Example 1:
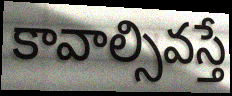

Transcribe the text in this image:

కావాల్సివస్తే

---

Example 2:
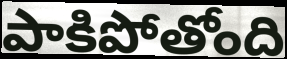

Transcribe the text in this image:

పాకిపోతోంది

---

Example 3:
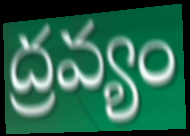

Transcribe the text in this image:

ద్రవ్యం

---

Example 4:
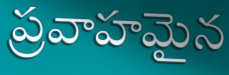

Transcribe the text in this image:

ప్రవాహమైన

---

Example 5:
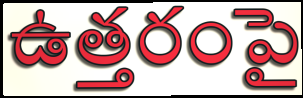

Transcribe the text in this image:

ఉత్తరంపై